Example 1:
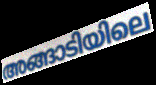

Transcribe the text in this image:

അങ്ങാടിയിലെ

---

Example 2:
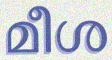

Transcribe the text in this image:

മീശ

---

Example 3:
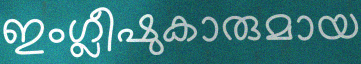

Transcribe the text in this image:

ഇംഗ്ലീഷുകാരുമായ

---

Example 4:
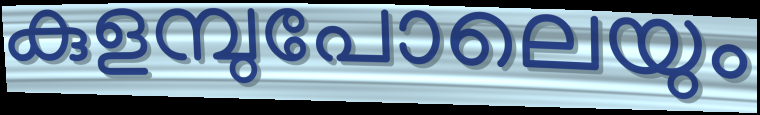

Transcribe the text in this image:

കുളമ്പുപോലെയും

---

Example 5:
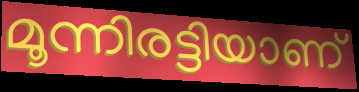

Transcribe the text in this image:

മൂന്നിരട്ടിയാണ്